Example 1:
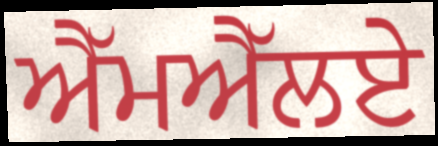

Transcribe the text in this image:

ਐੱਮਐੱਲਏ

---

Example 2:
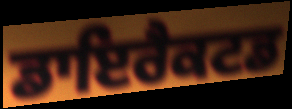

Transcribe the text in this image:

ਡਾਇਰੈਕਟਡ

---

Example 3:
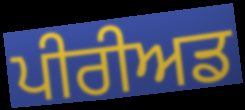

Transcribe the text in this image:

ਪੀਰੀਅਡ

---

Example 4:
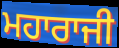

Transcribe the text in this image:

ਮਹਾਰਾਜੀ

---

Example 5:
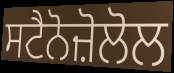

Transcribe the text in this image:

ਸਟੈਨੋਜ਼ੋਲੋਲ